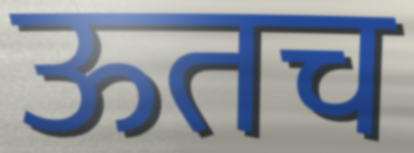
ऊतच